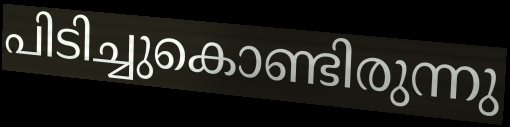
പിടിച്ചുകൊണ്ടിരുന്നു